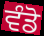
ਵੰਡੋ